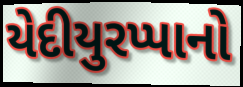
યેદીયુરપ્પાનો